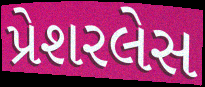
પ્રેશરલેસ